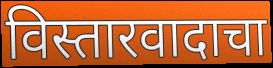
विस्तारवादाचा